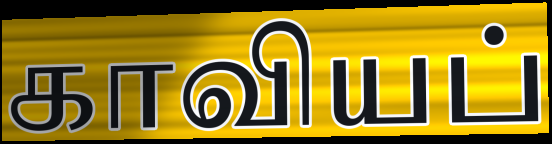
காவியப்